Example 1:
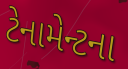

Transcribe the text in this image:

ટેનામેન્ટના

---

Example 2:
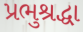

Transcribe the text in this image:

પ્રભુશ્રદ્ધા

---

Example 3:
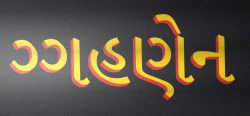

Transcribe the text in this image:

ગ્ગહણેન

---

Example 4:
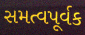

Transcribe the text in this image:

સમત્વપૂર્વક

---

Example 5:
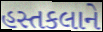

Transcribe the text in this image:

હસ્તકલાને